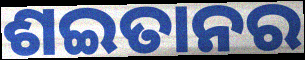
ଶଇତାନର